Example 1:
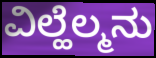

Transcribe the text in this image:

ವಿಲ್ಹೆಲ್ಮನು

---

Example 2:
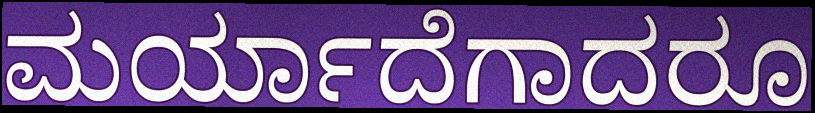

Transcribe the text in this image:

ಮರ್ಯಾದೆಗಾದರೂ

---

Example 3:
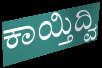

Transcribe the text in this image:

ಕಾಯ್ತಿದ್ವಿ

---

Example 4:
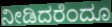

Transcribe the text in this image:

ನೀಡಿದರೆಂದೂ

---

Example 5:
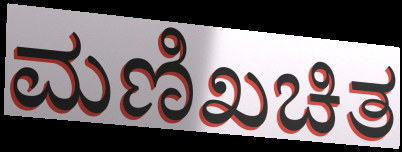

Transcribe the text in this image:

ಮಣಿಖಚಿತ